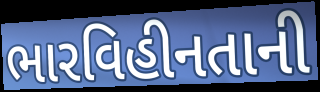
ભારવિહીનતાની